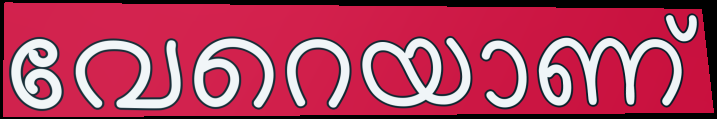
വേറെയാണ്